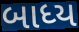
બાધ્ય